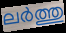
ലർത്തു